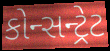
કોન્સન્ટ્રેટ